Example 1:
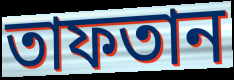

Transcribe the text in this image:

তাফতান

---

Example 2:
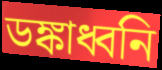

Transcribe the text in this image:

ডঙ্কাধ্বনি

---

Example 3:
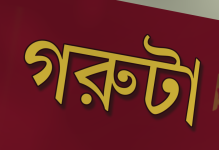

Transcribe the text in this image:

গরুটা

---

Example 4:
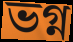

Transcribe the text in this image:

ভগ্ন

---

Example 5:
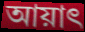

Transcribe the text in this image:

আয়াৎ